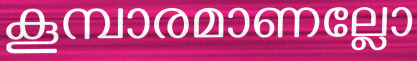
കൂമ്പാരമാണല്ലോ